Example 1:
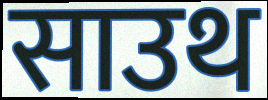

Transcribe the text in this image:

साउथ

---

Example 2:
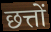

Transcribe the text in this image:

छत्तों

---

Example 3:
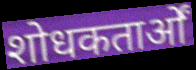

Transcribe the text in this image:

शोधकतार्ओं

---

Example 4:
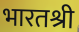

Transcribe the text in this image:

भारतश्री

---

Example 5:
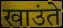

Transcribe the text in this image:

खाउंते